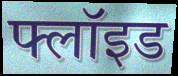
फ्लॉइड